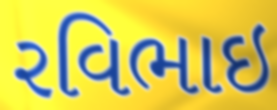
રવિભાઇ